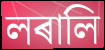
লৰালি